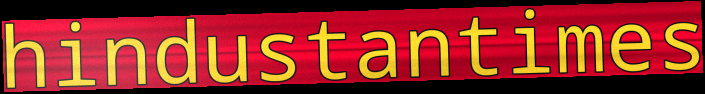
hindustantimes